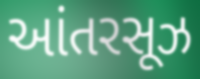
આંતરસૂઝ